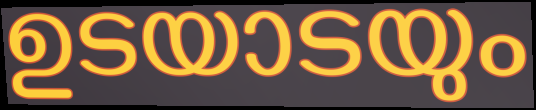
ഉടയാടയും